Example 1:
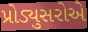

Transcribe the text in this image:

પ્રોડ્યુસરોએ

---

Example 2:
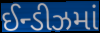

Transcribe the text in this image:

ઈન્ડીઝમાં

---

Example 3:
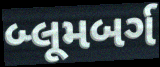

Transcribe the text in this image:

બ્લૂમબર્ગ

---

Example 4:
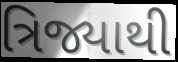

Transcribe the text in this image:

ત્રિજ્યાથી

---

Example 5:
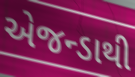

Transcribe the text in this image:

એજન્ડાથી